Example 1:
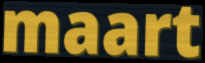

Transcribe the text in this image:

maart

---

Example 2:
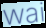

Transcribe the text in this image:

wai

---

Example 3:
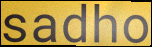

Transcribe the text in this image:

sadho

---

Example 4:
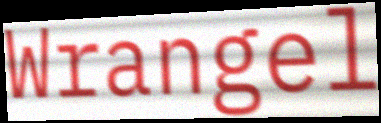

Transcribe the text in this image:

Wrangel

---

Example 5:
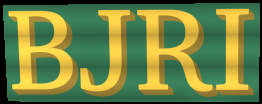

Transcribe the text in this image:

BJRI